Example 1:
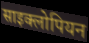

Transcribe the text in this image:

साइक्लोपियन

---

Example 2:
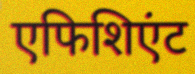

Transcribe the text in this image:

एफिशिएंट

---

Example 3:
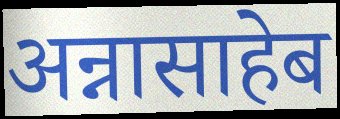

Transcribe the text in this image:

अन्नासाहेब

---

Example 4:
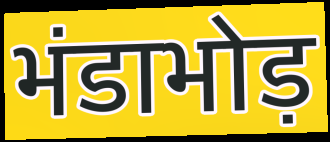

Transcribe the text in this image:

भंडाभोड़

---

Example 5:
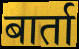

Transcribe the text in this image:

बार्ता